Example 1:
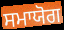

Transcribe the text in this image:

ਸਮਾਯੋਗ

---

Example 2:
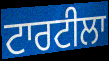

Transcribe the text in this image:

ਟਾਰਟੀਲਾ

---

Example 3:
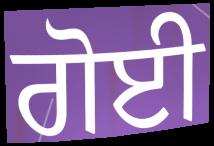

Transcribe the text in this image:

ਗੋਈ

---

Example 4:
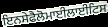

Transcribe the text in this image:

ਇਨਸੇਫੈਲੋਮਾਈਲਾਈਟਿਸ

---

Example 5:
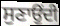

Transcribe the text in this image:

ਸੁਣਾਉਂਦੀ